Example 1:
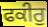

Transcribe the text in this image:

ਫਕੀਰੁ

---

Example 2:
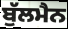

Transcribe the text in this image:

ਬੁੱਲਮੈਨ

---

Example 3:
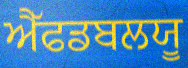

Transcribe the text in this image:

ਐੱਫਡਬਲਯੂ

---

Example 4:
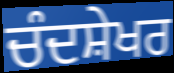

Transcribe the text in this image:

ਚੰਦਸ਼ੇਖਰ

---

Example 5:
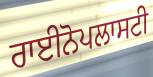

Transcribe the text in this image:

ਰਾਈਨੋਪਲਾਸਟੀ